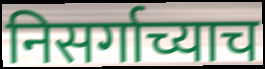
निसर्गाच्याच